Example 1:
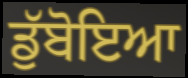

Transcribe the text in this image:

ਡੁੱਬੋਇਆ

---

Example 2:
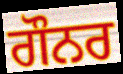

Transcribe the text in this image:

ਗੌਨਰ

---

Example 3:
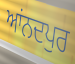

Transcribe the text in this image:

ਆਂਨਦਪੁਰ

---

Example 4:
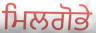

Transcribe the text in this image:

ਮਿਲਗੋਭੇ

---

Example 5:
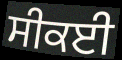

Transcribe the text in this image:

ਸੀਕਈ